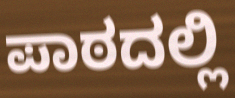
ಪಾಠದಲ್ಲಿ